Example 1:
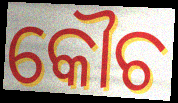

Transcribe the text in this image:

କୌଚ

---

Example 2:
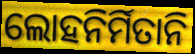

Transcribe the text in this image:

ଲୋହନିର୍ମିତାନି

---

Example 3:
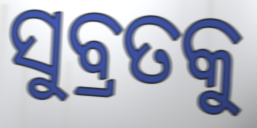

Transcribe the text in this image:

ସୁବ୍ରତକୁ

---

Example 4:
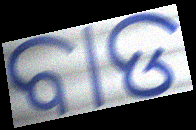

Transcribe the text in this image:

ବାଡ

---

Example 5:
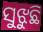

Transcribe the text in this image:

ସୁଝୁଛି